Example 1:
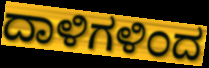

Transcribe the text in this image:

ದಾಳಿಗಳಿಂದ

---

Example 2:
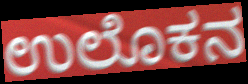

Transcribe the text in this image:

ಉಲೊಕನ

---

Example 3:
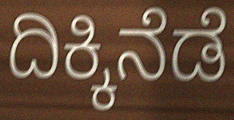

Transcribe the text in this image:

ದಿಕ್ಕಿನೆಡೆ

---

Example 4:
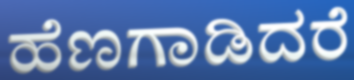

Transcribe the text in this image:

ಹೆಣಗಾಡಿದರೆ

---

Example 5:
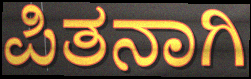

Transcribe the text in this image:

ಪಿತನಾಗಿ